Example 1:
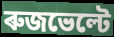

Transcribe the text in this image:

ৰুজভেল্টে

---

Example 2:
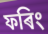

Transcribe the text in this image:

ফৰিং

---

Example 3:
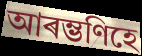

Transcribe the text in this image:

আৰম্ভণিহে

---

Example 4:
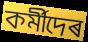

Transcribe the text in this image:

কৰ্মীদেৰ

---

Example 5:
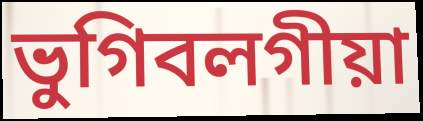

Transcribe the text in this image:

ভুগিবলগীয়া